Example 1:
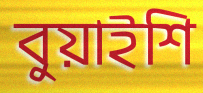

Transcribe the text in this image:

বুয়াইশি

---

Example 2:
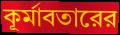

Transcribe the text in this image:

কূর্মাবতারের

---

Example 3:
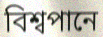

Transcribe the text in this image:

বিশ্বপানে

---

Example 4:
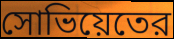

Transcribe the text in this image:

সোভিয়েতের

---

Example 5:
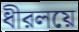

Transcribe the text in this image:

ধীরলয়ে